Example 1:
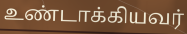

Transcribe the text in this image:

உண்டாக்கியவர்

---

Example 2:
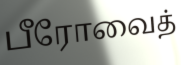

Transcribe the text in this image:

பீரோவைத்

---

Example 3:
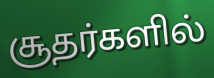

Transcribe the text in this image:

சூதர்களில்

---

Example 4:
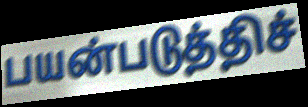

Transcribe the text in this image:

பயன்படுத்திச்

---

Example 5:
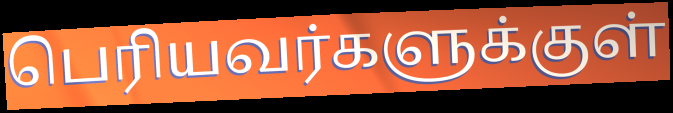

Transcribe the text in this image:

பெரியவர்களுக்குள்